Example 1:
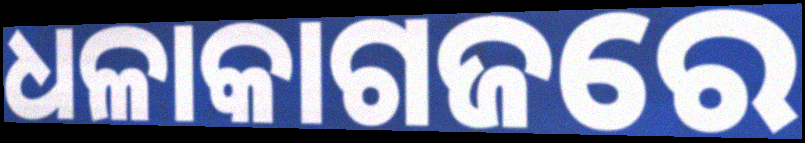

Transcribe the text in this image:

ଧଳାକାଗଜରେ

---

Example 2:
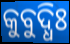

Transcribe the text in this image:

କୁବୁଦ୍ଧିଃ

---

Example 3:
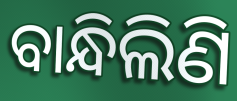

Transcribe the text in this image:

ବାନ୍ଧିଲିଣି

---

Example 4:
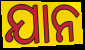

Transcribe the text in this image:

ଯାନ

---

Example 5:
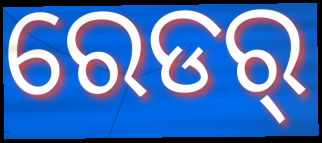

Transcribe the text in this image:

ରେଡର୍